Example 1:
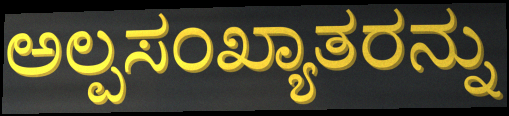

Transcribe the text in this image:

ಅಲ್ಪಸಂಖ್ಯಾತರನ್ನು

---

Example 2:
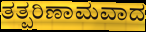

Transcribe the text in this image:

ತತ್ಪರಿಣಾಮವಾದ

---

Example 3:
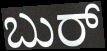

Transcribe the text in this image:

ಬುರ್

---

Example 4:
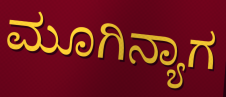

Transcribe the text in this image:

ಮೂಗಿನ್ಯಾಗ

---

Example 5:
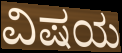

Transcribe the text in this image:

ವಿಷಯ